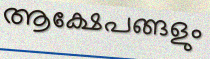
ആക്ഷേപങ്ങളും